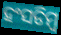
ହଂସଡିମ୍ବ